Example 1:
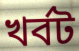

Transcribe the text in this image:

খর্বট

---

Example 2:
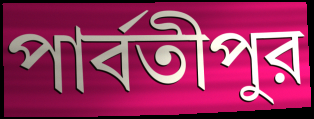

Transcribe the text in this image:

পার্বতীপুর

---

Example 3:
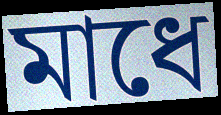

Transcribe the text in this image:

মাধে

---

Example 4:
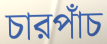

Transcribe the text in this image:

চারপাঁচ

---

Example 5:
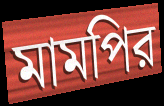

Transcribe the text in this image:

মামপির